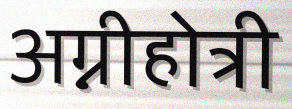
अग्नीहोत्री